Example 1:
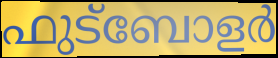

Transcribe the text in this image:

ഫുട്ബോളർ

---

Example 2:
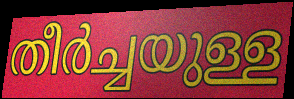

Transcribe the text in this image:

തീർച്ചയുള്ള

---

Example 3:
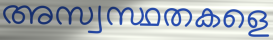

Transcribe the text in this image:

അസ്വസ്ഥതകളെ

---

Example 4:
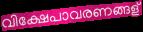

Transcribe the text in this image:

വിക്ഷേപാവരണങ്ങള്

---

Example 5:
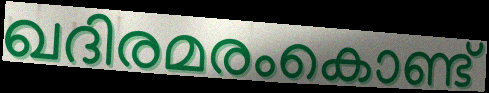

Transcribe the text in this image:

ഖദിരമരംകൊണ്ട്